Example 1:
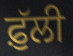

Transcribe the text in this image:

ਫ਼ੁੱਲੀ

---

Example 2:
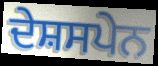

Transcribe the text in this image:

ਦੇਸ਼ਸਪੇਨ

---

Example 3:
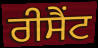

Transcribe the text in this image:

ਰੀਸੈਂਟ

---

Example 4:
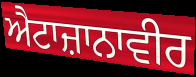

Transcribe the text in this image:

ਐਟਾਜ਼ਾਨਾਵੀਰ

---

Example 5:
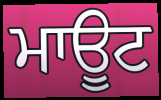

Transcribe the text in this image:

ਮਾਊਟ